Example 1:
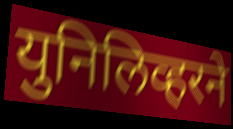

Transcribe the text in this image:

युनिलिव्हरने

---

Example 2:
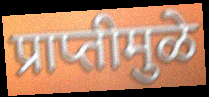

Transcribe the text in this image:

प्राप्तीमुळे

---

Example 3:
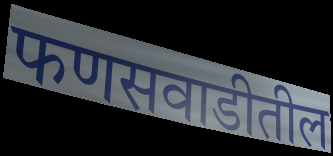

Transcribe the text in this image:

फणसवाडीतील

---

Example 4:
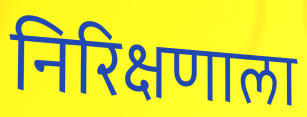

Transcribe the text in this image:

निरिक्षणाला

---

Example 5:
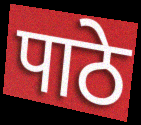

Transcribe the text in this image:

पाठे